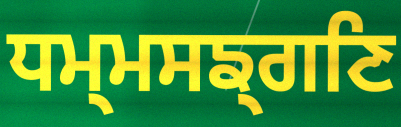
ਧਮ੍ਮਸਙ੍ਗਣਿ